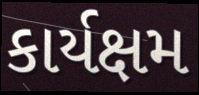
કાર્યક્ષમ